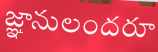
జ్ఞానులందరూ